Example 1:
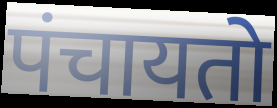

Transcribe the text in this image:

पंचायतो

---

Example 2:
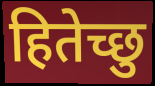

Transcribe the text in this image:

हितेच्छु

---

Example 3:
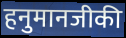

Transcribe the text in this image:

हनुमानजीकी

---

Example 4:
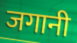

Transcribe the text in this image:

जगानी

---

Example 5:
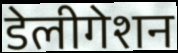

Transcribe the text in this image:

डेलीगेशन